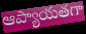
ఆప్యాయతగా